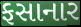
ફસાનાર